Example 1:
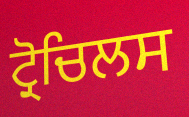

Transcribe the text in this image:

ਟ੍ਰੋਚਿਲਸ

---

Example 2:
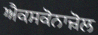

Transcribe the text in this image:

ਐਕਸਕੋਨਾਜ਼ੋਲ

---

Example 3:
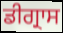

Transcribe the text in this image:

ਡੀਗ੍ਰਾਸ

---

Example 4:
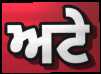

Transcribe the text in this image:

ਅਟੇ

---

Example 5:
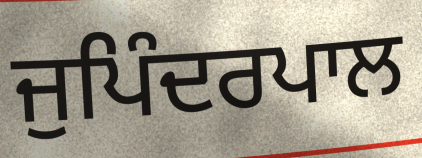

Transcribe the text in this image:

ਜੁਪਿੰਦਰਪਾਲ